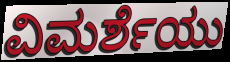
ವಿಮರ್ಶೆಯು